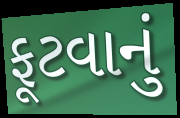
ફૂટવાનું